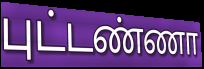
புட்டண்ணா